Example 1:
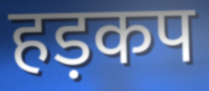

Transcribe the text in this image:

हड़कप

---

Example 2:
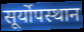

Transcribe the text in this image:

सूर्योपस्थान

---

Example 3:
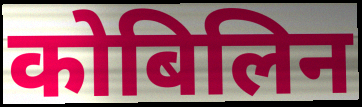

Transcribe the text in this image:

कोबिलिन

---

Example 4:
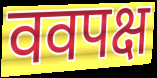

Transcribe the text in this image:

ववपक्ष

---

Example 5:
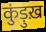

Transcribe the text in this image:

कुंड़ुख़